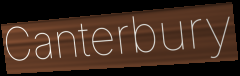
Canterbury